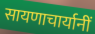
सायणाचार्यानीं